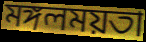
মঙ্গলময়তা